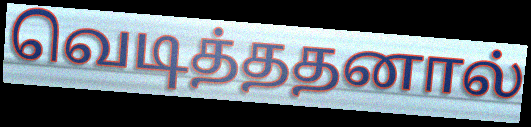
வெடித்ததனால்